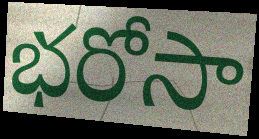
భరోసా